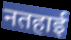
नतहाई